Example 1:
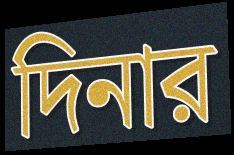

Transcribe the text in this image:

দিনার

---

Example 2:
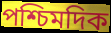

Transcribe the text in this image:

পশ্চিমদিক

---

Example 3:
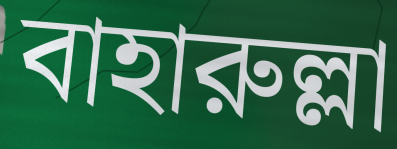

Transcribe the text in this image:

বাহারুল্লা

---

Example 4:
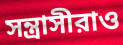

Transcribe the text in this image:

সন্ত্রাসীরাও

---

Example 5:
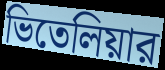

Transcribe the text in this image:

ভিতেলিয়ার